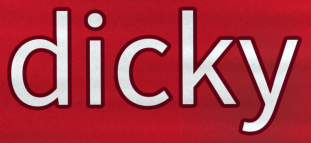
dicky